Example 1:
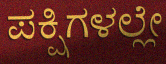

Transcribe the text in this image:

ಪಕ್ಷಿಗಳಲ್ಲೇ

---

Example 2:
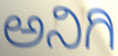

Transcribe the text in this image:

ಅನಿಗಿ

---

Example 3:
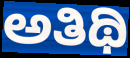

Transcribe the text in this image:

ಅತಿಥಿ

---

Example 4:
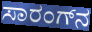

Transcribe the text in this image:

ಸಾರಂಗ್‌ನ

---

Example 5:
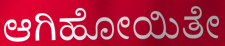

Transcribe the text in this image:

ಆಗಿಹೋಯಿತೇ